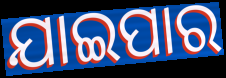
ଯାଇପାର